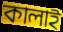
কালাই